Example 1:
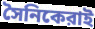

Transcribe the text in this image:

সৈনিকেরাই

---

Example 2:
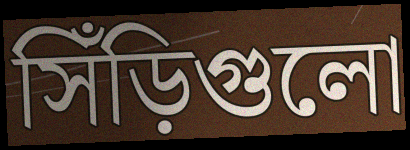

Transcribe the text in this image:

সিঁড়িগুলো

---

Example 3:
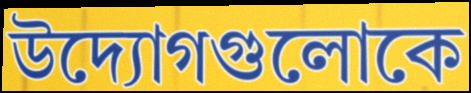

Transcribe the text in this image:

উদ্যোগগুলোকে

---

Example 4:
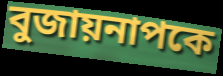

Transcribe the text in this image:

বুজায়নাপকে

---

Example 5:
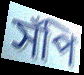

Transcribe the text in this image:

সঁপি